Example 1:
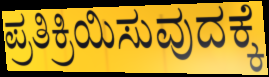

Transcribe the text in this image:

ಪ್ರತಿಕ್ರಿಯಿಸುವುದಕ್ಕೆ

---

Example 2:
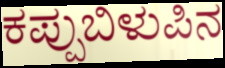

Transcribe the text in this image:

ಕಪ್ಪುಬಿಳುಪಿನ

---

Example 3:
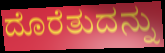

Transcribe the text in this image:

ದೊರೆತುದನ್ನು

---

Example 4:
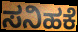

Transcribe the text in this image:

ಸನಿಹಕೆ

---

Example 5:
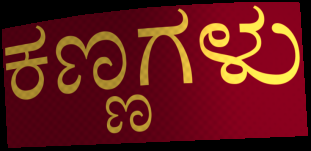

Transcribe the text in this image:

ಕಣ್ಣಗಳು